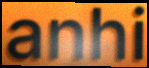
anhi